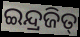
ଇନ୍ଦ୍ରଜିତ୍